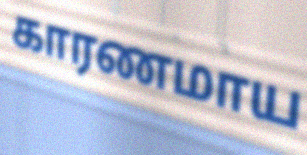
காரணமாய